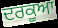
ਦਰਕੂਆ